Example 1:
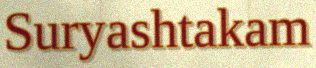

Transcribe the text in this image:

Suryashtakam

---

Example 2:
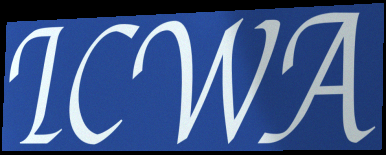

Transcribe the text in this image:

ICWA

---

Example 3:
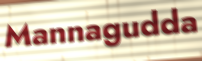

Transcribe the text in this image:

Mannagudda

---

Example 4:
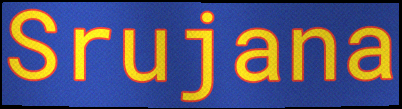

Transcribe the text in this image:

Srujana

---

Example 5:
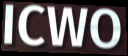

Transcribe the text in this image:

ICWO